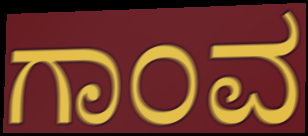
ಗಾಂವ